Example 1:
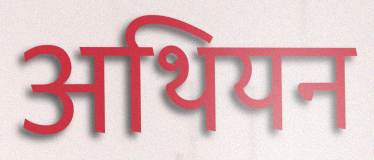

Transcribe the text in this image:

अथियन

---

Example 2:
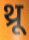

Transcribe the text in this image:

थ्रू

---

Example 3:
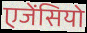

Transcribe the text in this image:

एजेंसियो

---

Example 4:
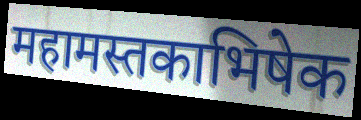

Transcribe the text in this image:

महामस्तकाभिषेक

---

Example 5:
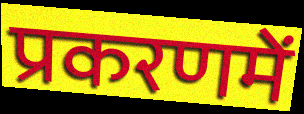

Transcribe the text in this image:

प्रकरणमें